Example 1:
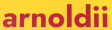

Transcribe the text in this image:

arnoldii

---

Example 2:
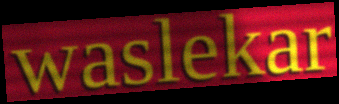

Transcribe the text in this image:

waslekar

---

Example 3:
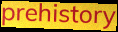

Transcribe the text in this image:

prehistory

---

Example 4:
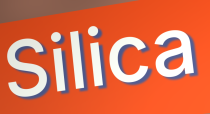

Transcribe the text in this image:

Silica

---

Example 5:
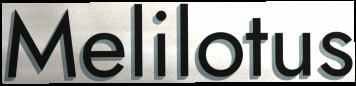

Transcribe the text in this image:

Melilotus